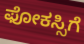
ಫೋಕಸ್ಸಿಗೆ